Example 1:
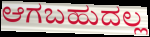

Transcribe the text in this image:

ಆಗಬಹುದಲ್ಲ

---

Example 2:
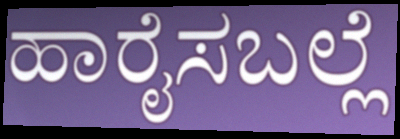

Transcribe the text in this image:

ಹಾರೈಸಬಲ್ಲೆ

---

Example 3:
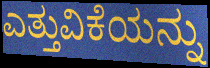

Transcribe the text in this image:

ಎತ್ತುವಿಕೆಯನ್ನು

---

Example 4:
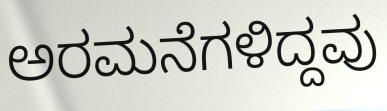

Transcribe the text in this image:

ಅರಮನೆಗಳಿದ್ದವು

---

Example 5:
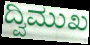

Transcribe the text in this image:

ದ್ವಿಮುಖ